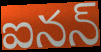
ఐనన్